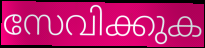
സേവിക്കുക